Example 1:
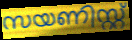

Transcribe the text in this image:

സയണിസ്റ്റ്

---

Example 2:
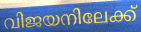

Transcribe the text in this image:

വിജയനിലേക്ക്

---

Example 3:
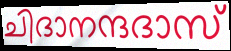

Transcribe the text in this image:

ചിദാനന്ദദാസ്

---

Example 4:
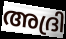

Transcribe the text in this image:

അദ്രി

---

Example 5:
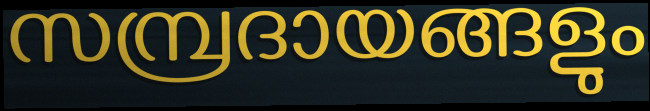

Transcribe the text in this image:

സമ്പ്രദായങ്ങളും